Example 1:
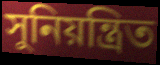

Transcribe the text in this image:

সুনিয়ন্ত্ৰিত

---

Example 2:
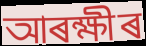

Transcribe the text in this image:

আৰক্ষীৰ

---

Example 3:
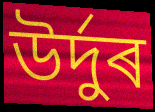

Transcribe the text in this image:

উৰ্দুৰ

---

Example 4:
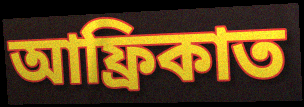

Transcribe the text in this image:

আফ্ৰিকাত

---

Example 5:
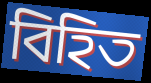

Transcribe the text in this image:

বিহিত